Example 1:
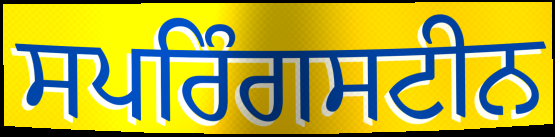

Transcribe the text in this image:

ਸਪਰਿੰਗਸਟੀਨ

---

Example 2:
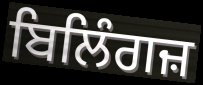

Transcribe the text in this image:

ਬਿਲਿੰਗਜ਼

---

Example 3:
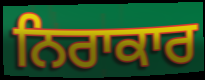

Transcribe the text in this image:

ਨਿਰਾਕਾਰ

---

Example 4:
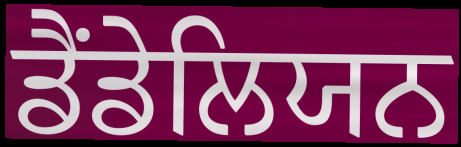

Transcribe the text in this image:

ਡੈਂਡੇਲਿਯਨ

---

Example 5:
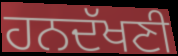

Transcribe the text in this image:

ਹਨਦੱਖਣੀ